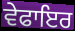
ਵੇਫਾਇਰ